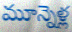
మూన్నెళ్ల